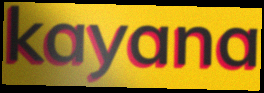
kayana